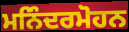
ਮਨਿੰਦਰਮੋਹਨ